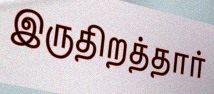
இருதிறத்தார்